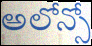
అలోన్సో